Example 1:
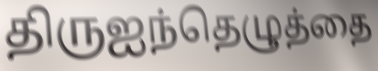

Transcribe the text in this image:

திருஐந்தெழுத்தை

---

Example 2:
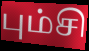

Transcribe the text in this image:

பும்சி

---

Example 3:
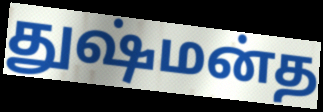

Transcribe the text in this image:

துஷ்மன்த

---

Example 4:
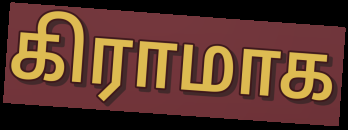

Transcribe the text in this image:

கிராமாக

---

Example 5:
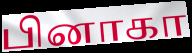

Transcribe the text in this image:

பினாகா